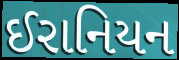
ઈરાનિયન